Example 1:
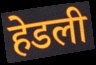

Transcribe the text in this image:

हेडली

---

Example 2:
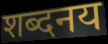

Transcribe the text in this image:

शब्दनय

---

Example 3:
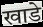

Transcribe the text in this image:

खाडे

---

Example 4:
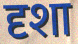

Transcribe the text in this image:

दृशा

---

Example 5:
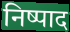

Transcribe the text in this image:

निष्पाद